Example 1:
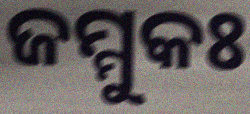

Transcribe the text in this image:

ଜମ୍ମୁକଃ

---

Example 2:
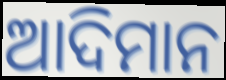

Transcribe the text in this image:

ଆଦିମାନ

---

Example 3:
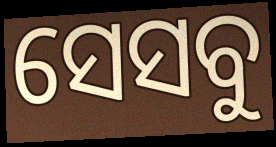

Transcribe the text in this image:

ସେସବୁ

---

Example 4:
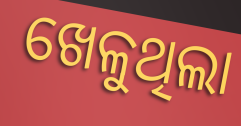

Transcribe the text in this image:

ଖେଳୁଥିଲା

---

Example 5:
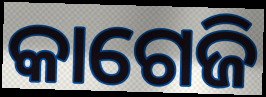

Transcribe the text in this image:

କାଗେଜି